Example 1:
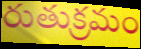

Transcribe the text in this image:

రుతుక్రమం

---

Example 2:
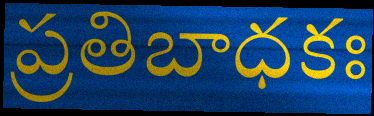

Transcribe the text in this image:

ప్రతిబాధకః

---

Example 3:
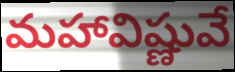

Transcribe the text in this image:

మహావిష్ణువే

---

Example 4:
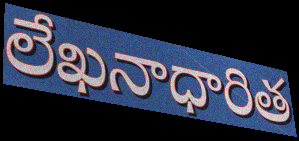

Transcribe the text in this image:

లేఖనాధారిత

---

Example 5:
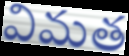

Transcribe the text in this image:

విమత